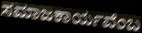
ಸಮಾಜಕಾರ್ಯವೆಂಬ